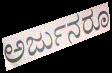
ಅರ್ಜುನರೂ